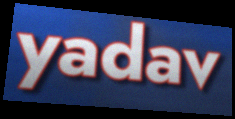
yadav